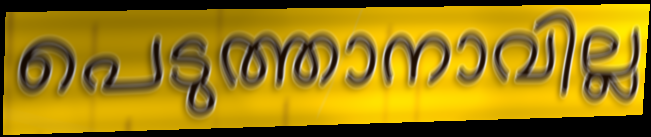
പെടുത്താനാവില്ല